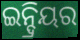
ଇନ୍ଦ୍ରିୟର